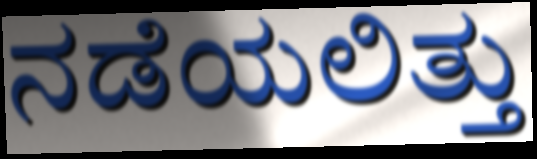
ನಡೆಯಲಿತ್ತು